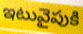
ఇటువైపుకి